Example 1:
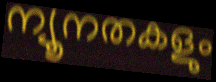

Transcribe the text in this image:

ന്യൂനതകളും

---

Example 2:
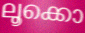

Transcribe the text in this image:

ലൂക്കൊ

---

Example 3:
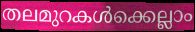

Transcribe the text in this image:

തലമുറകൾക്കെല്ലാം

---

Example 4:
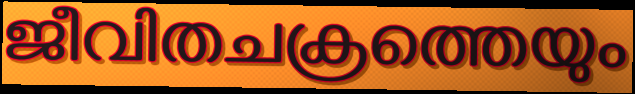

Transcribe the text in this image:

ജീവിതചക്രത്തെയും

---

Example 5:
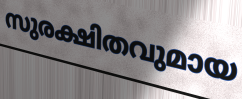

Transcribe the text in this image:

സുരക്ഷിതവുമായ